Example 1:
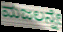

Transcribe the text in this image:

ಮಜಲನ್ನೇ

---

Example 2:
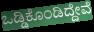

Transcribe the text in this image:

ಒಡ್ಡಿಕೊಂಡಿದ್ದೇವೆ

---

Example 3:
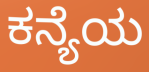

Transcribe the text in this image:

ಕನ್ಯೆಯ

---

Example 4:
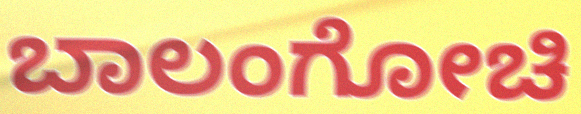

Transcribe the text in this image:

ಬಾಲಂಗೋಚಿ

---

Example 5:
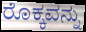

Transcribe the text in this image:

ರೊಕ್ಕವನ್ನು